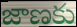
జాణకు